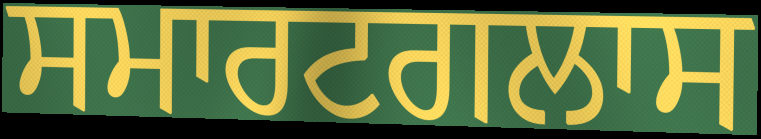
ਸਮਾਰਟਗਲਾਸ